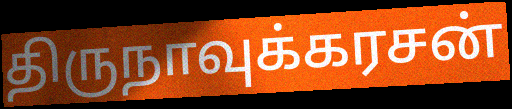
திருநாவுக்கரசன்